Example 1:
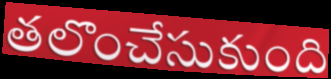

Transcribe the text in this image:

తలొంచేసుకుంది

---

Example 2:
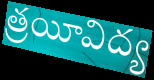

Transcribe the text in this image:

త్రయీవిద్య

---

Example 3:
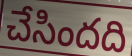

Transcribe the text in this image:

చేసిందది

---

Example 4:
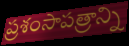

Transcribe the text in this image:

ప్రశంసాపత్రాన్ని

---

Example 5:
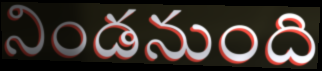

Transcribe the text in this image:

నిండనుంది